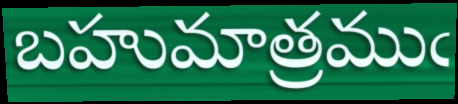
బహుమాత్రముఁ